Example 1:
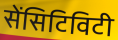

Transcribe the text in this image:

सेंसिटिविटी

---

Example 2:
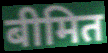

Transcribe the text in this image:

बीमित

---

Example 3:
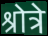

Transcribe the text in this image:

श्रोत्रे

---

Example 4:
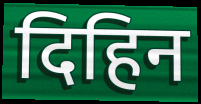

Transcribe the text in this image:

दिहिन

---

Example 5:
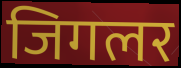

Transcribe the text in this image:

जिगलर